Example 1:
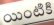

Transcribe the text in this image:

యింటికి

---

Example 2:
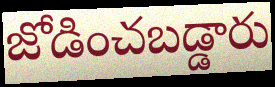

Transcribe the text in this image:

జోడించబడ్డారు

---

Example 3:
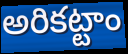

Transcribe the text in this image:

అరికట్టాం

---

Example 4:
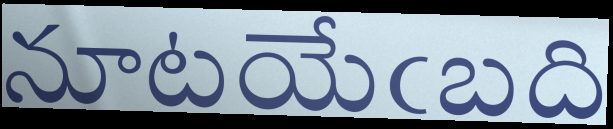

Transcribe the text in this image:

నూటయేఁబది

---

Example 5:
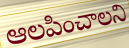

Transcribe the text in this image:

ఆలపించాలని